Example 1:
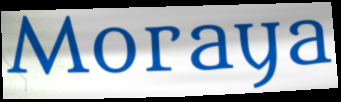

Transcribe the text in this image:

Moraya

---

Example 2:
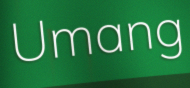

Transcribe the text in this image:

Umang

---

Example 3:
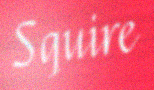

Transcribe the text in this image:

Squire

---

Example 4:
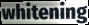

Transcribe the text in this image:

whitening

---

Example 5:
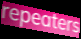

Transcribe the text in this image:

repeaters